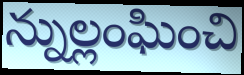
న్నుల్లంఘించి